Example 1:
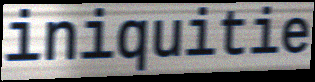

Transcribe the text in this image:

iniquitie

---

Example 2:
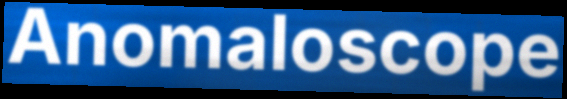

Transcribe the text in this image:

Anomaloscope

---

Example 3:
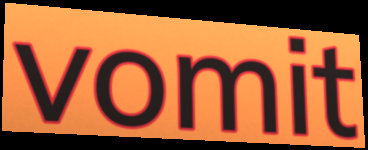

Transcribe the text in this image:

vomit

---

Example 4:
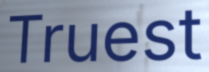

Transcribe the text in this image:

Truest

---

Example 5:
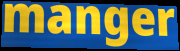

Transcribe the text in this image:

manger